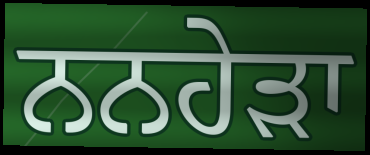
ਨਨਹੇੜਾ